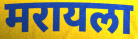
मरायला